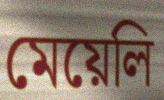
মেয়েলি